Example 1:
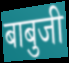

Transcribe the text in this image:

बाबुजी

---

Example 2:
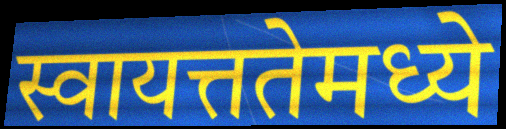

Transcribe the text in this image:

स्वायत्ततेमध्ये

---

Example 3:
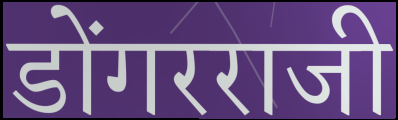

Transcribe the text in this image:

डोंगरराजी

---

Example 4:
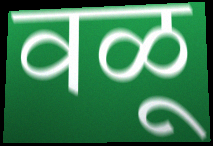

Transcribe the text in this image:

वळू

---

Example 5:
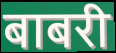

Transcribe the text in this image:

बाबरी